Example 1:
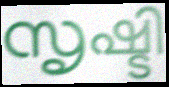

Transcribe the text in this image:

സൃഷ്ടി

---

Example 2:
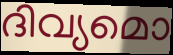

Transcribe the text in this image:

ദിവ്യമൊ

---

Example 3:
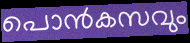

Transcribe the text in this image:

പൊൻകസവും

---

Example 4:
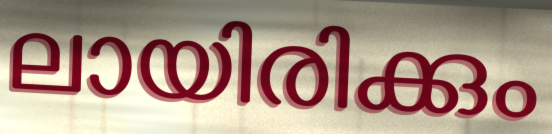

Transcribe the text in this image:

ലായിരിക്കും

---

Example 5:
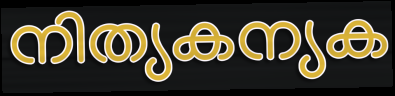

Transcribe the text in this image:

നിത്യകന്യക